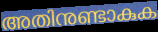
അതിനുണ്ടാകുക